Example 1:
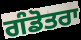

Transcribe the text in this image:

ਗੰਡੋਤਰਾ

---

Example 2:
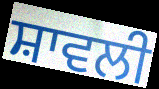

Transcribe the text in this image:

ਸ਼ਾਵਲੀ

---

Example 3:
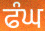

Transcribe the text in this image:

ਫੰਘ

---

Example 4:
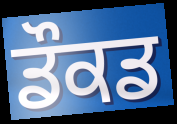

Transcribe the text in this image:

ਡੌਕਡ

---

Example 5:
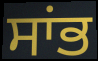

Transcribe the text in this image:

ਸਾਂਭ